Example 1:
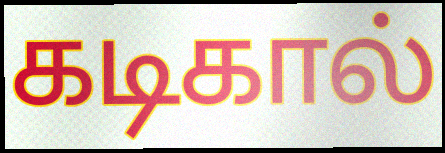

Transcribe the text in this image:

கடிகால்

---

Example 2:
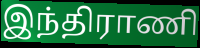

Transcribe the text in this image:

இந்திராணி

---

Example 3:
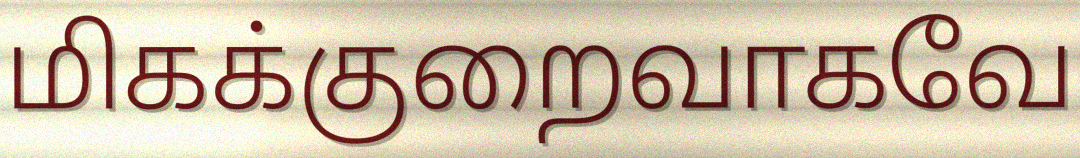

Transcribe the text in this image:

மிகக்குறைவாகவே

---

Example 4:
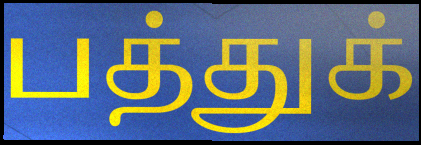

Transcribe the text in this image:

பத்துக்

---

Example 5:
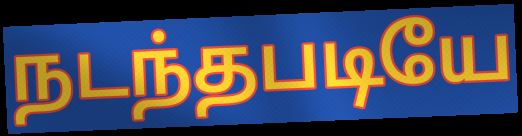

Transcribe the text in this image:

நடந்தபடியே